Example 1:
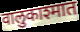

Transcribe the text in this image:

वालुकाश्मात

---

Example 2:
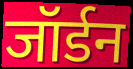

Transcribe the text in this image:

जॉर्डन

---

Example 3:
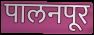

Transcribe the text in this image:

पालनपूर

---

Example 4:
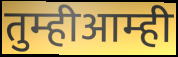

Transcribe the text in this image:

तुम्हीआम्ही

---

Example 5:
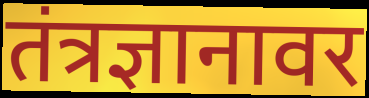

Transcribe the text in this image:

तंत्रज्ञानावर